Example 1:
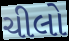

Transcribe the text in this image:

ચીલો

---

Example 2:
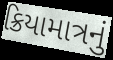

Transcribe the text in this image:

ક્રિયામાત્રનું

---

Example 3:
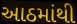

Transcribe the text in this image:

આઠમાંથી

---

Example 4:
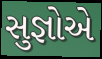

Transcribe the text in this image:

સુજ્ઞોએ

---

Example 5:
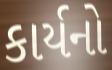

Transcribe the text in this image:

કાર્યનો